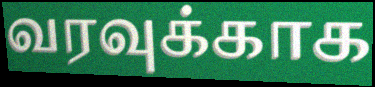
வரவுக்காக